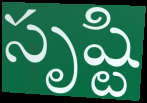
సృష్టి